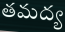
తమద్య